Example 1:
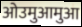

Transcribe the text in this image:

ओउमुआमुआ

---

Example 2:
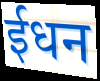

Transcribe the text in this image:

ईधन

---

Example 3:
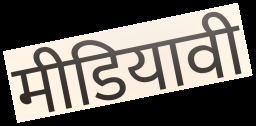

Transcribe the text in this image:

मीडियावी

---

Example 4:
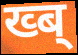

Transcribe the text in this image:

ख्ब्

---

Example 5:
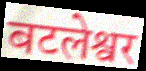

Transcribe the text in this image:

बटलेश्वर